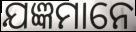
ଯଜ୍ଞମାନେ